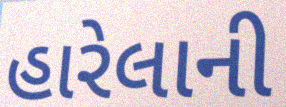
હારેલાની